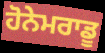
ਹੋਨੇਮਰਾਡੂ